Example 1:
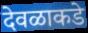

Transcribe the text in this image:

देवळाकडे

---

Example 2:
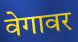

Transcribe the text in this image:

वेगावर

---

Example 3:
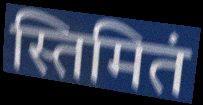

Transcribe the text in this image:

स्तिमितं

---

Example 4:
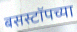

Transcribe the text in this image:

बसस्टॉपच्या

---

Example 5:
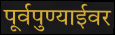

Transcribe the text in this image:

पूर्वपुण्याईवर